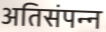
अतिसंपन्न